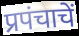
प्रपंचाचें